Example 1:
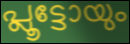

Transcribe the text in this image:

പ്ലൂട്ടോയും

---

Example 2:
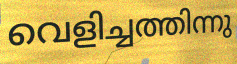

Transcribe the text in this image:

വെളിച്ചത്തിന്നു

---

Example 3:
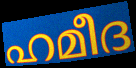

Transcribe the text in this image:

ഹമീദ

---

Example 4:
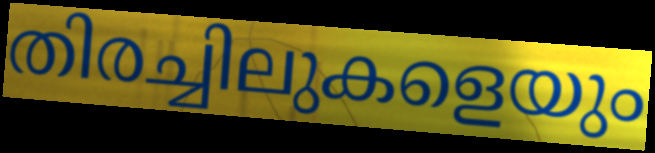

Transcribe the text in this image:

തിരച്ചിലുകളെയും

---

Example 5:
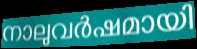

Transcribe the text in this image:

നാലുവർഷമായി